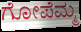
ಗೋಪೆಮ್ಮ